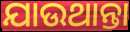
ଯାଉଥାନ୍ତା